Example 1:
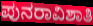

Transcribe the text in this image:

ಪುನರಾವಿಶಾತಿ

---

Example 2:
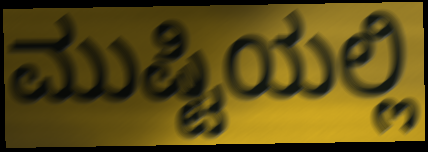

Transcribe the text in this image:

ಮುಷ್ಟಿಯಲ್ಲಿ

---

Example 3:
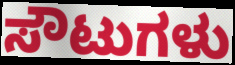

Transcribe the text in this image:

ಸೌಟುಗಳು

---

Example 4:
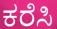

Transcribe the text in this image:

ಕರೆಸಿ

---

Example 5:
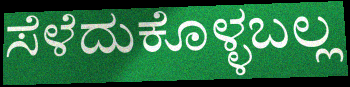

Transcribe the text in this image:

ಸೆಳೆದುಕೊಳ್ಳಬಲ್ಲ